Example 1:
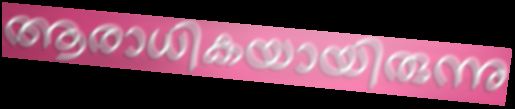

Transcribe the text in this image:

ആരാധികയായിരുന്നു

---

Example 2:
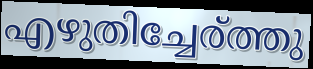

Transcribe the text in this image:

എഴുതിച്ചേര്ത്തു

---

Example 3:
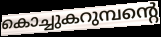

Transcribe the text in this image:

കൊച്ചുകറുമ്പന്റെ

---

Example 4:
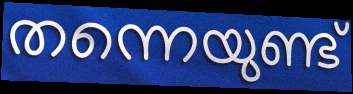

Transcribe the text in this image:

തന്നെയുണ്ട്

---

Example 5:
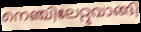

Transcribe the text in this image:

നെഞ്ചിലേറ്റുവാങ്ങി